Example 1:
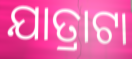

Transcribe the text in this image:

ଯାତ୍ରାଟା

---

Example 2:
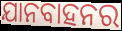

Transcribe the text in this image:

ଯାନବାହନର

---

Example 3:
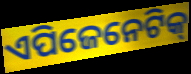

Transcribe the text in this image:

ଏପିଜେନେଟିକ୍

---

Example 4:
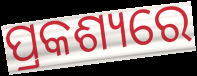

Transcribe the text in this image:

ପ୍ରକଶ୍ୟରେ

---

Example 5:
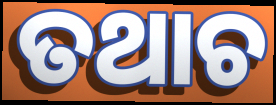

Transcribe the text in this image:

ତଥାଚ